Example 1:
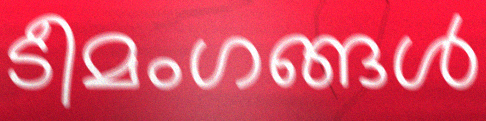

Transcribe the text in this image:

ടീമംഗങ്ങൾ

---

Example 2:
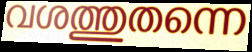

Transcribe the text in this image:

വശത്തുതന്നെ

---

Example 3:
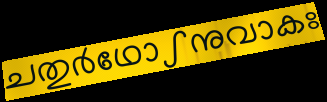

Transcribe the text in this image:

ചതുർഥോഽനുവാകഃ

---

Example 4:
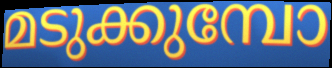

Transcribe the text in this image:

മടുക്കുമ്പോ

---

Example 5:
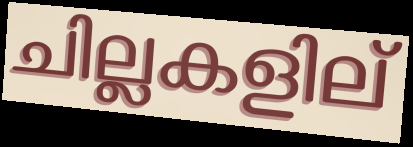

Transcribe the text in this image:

ചില്ലകളില്